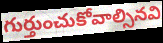
గుర్తుంచుకోవాల్సినవి